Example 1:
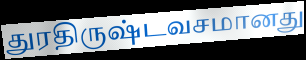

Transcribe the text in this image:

துரதிருஷ்டவசமானது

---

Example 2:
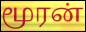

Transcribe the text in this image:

மூரன்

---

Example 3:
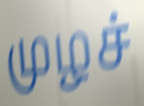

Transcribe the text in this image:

முழச்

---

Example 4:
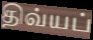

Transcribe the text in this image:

திவ்யப்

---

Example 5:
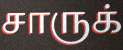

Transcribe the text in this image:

சாருக்